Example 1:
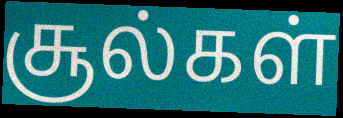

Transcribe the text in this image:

சூல்கள்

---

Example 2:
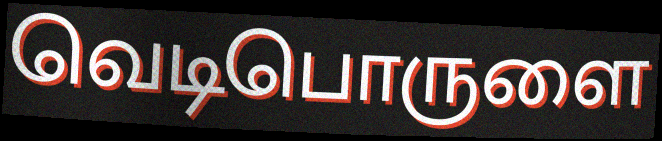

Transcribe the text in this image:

வெடிபொருளை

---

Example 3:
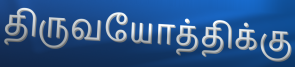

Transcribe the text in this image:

திருவயோத்திக்கு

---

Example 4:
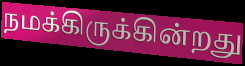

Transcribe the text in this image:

நமக்கிருக்கின்றது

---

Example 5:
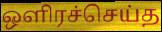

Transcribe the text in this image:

ஒளிரச்செய்த